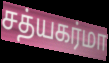
சத்யகர்மா